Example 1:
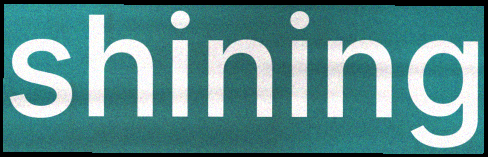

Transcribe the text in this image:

shining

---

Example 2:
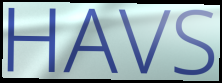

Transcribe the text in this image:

HAVS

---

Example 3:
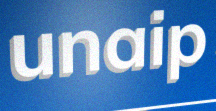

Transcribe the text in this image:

unaip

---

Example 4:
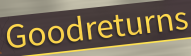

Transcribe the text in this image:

Goodreturns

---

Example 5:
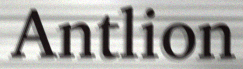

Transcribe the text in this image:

Antlion